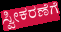
ಸ್ವೀಕರಣೆಗೆ